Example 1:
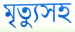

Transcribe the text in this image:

মৃত্যুসহ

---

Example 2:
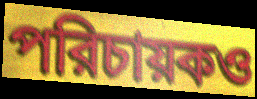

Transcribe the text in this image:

পরিচায়কও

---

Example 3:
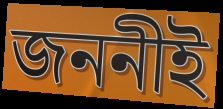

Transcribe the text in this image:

জননীই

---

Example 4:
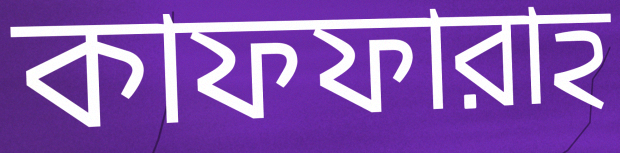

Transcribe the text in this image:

কাফফারাহ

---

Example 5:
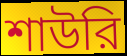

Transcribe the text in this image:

শাউরি